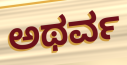
ಅಥರ್ವ